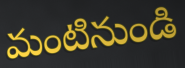
మంటినుండి